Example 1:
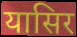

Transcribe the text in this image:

यासिर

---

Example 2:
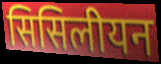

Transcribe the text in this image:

सिसिलीयन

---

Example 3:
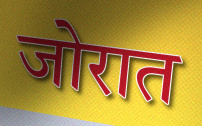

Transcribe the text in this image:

जोरात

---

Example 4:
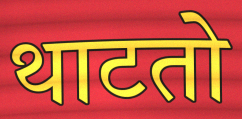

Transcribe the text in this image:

थाटतो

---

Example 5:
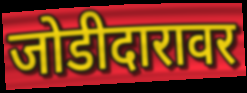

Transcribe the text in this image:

जोडीदारावर